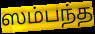
ஸம்பந்த